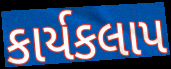
કાર્યકલાપ